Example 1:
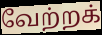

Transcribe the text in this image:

வேற்றக்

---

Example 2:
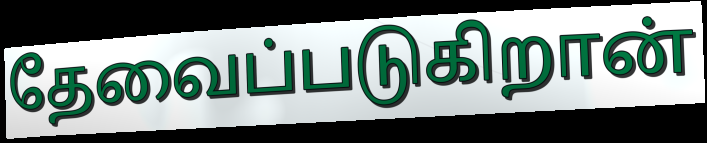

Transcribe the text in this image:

தேவைப்படுகிறான்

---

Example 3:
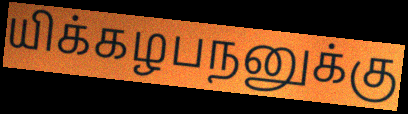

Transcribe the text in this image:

யிக்கழபநனுக்கு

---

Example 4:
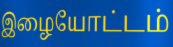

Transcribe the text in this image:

இழையோட்டம்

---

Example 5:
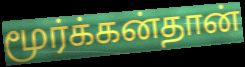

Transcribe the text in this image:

மூர்க்கன்தான்